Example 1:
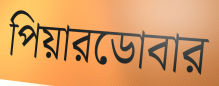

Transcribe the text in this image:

পিয়ারডোবার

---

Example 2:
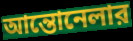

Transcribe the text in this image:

আন্তোনেলার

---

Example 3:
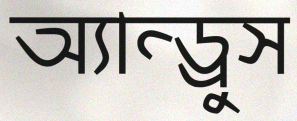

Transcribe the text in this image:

অ্যান্ড্রুস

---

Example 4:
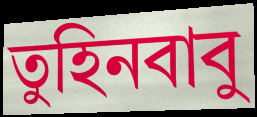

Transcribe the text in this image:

তুহিনবাবু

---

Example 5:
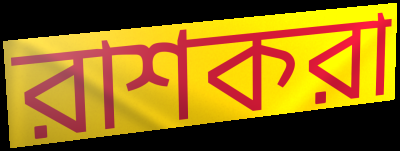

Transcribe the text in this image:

রাশকরা